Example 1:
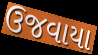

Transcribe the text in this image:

ઉજવાયા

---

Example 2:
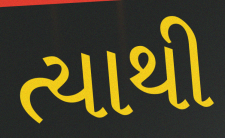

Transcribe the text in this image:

ત્યાથી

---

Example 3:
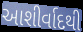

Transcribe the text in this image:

આશીર્વાદથી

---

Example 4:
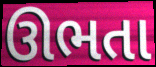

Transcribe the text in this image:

ઊભતા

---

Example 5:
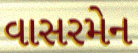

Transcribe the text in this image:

વાસરમેન